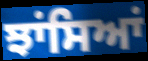
ਝਾਂਸਿਆਂ